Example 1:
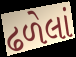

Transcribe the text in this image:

ઢળેલાં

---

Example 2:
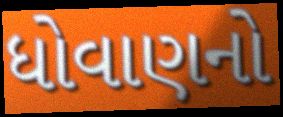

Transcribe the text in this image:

ધોવાણનો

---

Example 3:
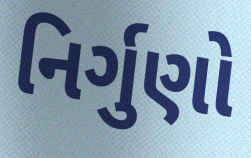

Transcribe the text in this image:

નિર્ગુણો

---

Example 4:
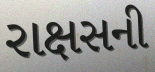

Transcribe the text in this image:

રાક્ષસની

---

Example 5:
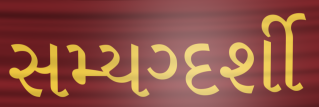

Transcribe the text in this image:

સમ્યગ્દર્શી